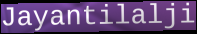
Jayantilalji